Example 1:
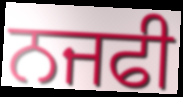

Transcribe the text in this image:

ਨਜਫੀ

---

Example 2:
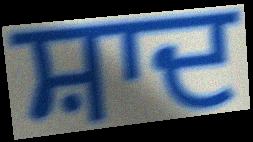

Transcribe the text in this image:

ਸ਼ਾਦ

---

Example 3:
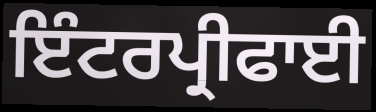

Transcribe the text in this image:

ਇੰਟਰਪ੍ਰੀਫਾਈ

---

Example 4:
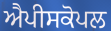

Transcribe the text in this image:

ਐਪੀਸਕੋਪਲ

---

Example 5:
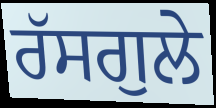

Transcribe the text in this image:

ਰੱਸਗੁਲੇ